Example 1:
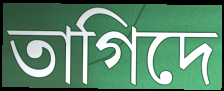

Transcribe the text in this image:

তাগিদে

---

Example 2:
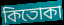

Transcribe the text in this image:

কিতোকা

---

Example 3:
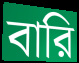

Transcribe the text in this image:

বারি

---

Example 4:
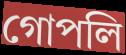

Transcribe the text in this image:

গোপলি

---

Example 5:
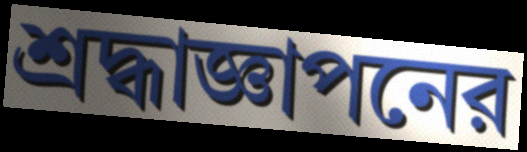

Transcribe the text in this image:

শ্রদ্ধাজ্ঞাপনের